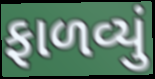
ફાળવ્યું